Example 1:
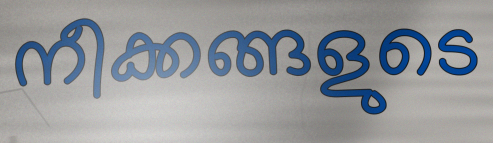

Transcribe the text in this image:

നീക്കങ്ങളുടെ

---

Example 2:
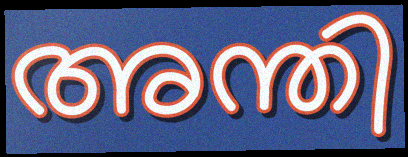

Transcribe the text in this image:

അന്തി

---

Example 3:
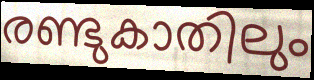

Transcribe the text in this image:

രണ്ടുകാതിലും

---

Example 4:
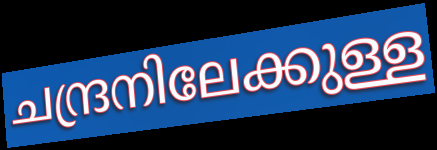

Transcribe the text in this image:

ചന്ദ്രനിലേക്കുള്ള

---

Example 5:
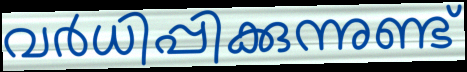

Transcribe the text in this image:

വർധിപ്പിക്കുന്നുണ്ട്